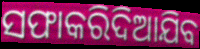
ସଫାକରିଦିଆଯିବ